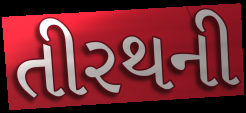
તીરથની